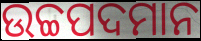
ଉଚ୍ଚପଦମାନ